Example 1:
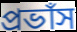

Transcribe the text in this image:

প্রভাঁস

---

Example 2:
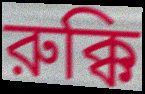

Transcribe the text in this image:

রুক্কি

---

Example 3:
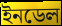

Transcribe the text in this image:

ইনডেল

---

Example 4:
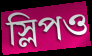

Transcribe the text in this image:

স্লিপও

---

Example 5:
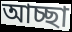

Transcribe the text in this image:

আচ্ছা